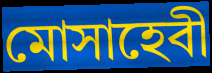
মোসাহেবী